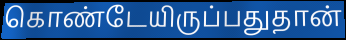
கொண்டேயிருப்பதுதான்